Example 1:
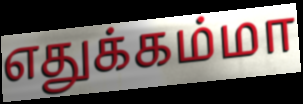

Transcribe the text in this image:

எதுக்கம்மா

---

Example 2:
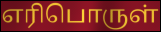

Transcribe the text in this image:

எரிபொருள்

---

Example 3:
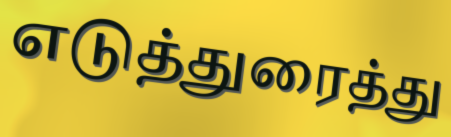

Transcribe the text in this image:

எடுத்துரைத்து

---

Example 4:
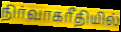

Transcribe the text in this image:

நிர்வாகரீதியில்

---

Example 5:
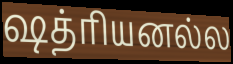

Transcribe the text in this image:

ஷத்ரியனல்ல